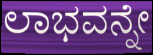
ಲಾಭವನ್ನೇ